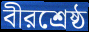
বীরশ্রেষ্ঠ